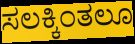
ಸಲಕ್ಕಿಂತಲೂ